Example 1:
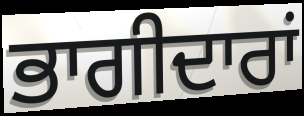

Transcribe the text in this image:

ਭਾਗੀਦਾਰਾਂ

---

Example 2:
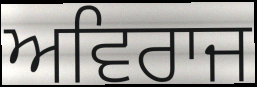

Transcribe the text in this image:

ਅਵਿਰਾਜ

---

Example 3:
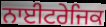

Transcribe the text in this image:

ਨਾਈਟਰੇਜਿਕ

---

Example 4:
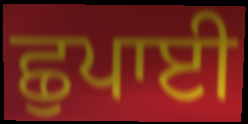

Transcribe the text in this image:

ਛੁਪਾਈ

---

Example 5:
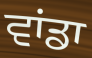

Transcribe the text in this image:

ਵਾਂਡਾ